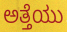
ಅತ್ತೆಯು